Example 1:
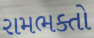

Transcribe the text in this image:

રામભક્તો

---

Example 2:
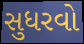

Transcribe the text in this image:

સુધરવો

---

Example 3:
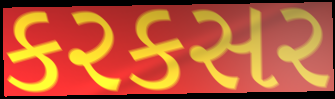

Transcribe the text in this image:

કરકસર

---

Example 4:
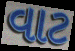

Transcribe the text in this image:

વાટ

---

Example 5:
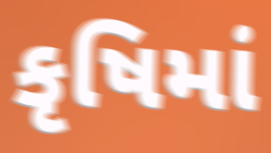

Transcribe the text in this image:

કૃષિમાં